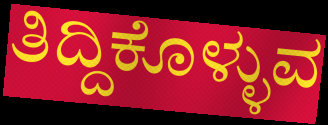
ತಿದ್ದಿಕೊಳ್ಳುವ